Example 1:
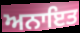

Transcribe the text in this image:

ਅਨਾਇਤ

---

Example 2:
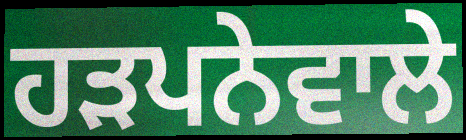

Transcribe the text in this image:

ਹੜਪਨੇਵਾਲੇ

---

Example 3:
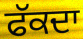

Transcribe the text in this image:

ਫੱਕਦਾ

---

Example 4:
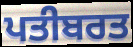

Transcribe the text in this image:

ਪਤੀਬਰਤ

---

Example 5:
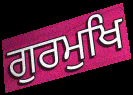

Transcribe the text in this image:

ਗੁਰਮੁਖਿ